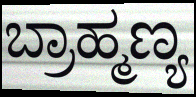
ಬ್ರಾಹ್ಮಣ್ಯ